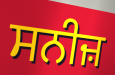
ਸਨੀਜ਼